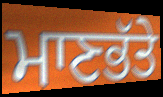
ਮਾਣਭੱਤੇ